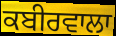
ਕਬੀਰਵਾਲਾ